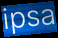
ipsa